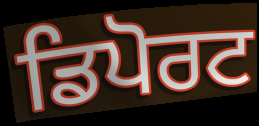
ਡਿਪੋਰਟ